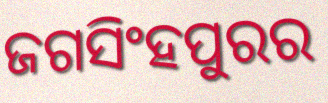
ଜଗସିଂହପୁରର